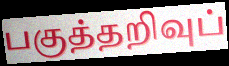
பகுத்தறிவுப்